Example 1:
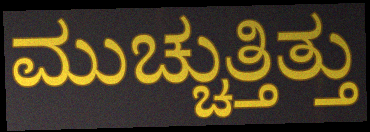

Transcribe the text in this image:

ಮುಚ್ಚುತ್ತಿತ್ತು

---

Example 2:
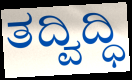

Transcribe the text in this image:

ತದ್ವಿದ್ಧಿ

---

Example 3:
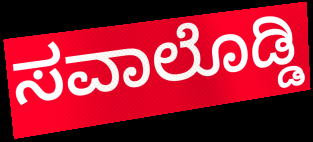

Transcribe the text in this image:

ಸವಾಲೊಡ್ಡಿ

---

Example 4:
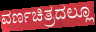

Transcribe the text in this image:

ವರ್ಣಚಿತ್ರದಲ್ಲೂ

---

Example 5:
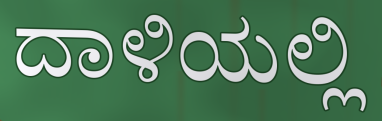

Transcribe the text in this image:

ದಾಳಿಯಲ್ಲಿ